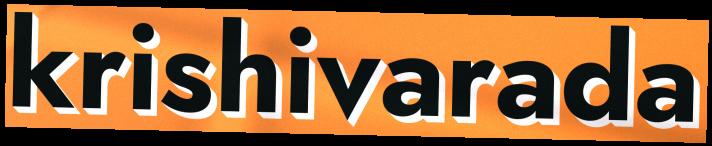
krishivarada